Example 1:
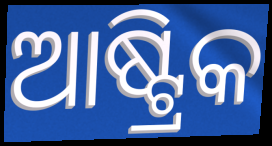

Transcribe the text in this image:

ଆଷ୍ଟ୍ରିକ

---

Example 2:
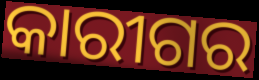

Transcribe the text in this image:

କାରୀଗର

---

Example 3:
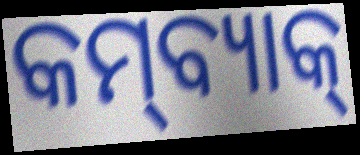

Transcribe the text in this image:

କମ୍‌ବ୍ୟାକ୍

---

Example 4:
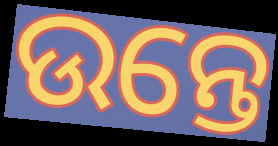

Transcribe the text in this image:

ଉନ୍ତେ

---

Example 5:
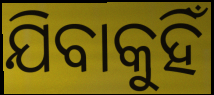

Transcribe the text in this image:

ଯିବାକୁହିଁ